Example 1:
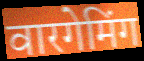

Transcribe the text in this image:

वारगेमिंग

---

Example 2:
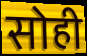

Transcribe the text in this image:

सोही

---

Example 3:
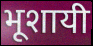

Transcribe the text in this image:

भूशायी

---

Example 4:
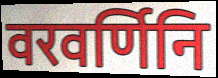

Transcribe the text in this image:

वरवर्णिनि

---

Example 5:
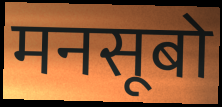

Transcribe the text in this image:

मनसूबो